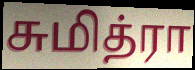
சுமித்ரா